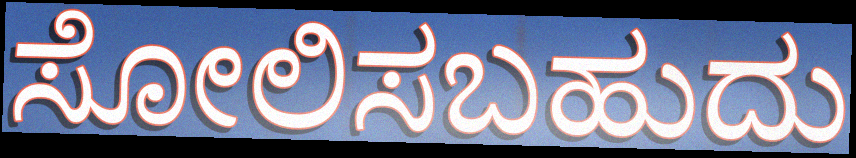
ಸೋಲಿಸಬಹುದು